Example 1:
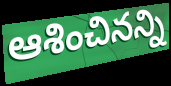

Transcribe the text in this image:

ఆశించినన్ని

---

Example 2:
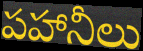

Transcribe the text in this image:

పహానీలు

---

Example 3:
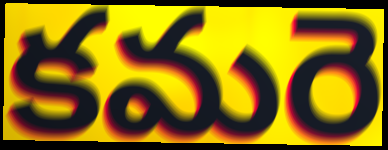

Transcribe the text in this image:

కమరె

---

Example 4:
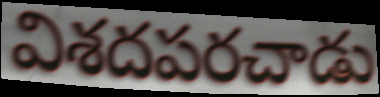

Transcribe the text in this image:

విశదపరచాడు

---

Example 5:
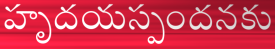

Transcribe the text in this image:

హృదయస్పందనకు